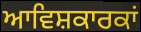
ਆਵਿਸ਼ਕਾਰਕਾਂ